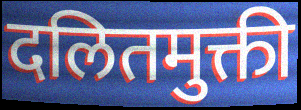
दलितमुक्ती